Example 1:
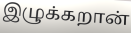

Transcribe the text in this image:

இழுக்கறான்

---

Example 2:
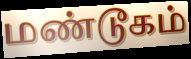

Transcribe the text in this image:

மண்டூகம்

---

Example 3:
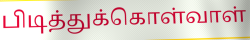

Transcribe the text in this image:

பிடித்துக்கொள்வாள்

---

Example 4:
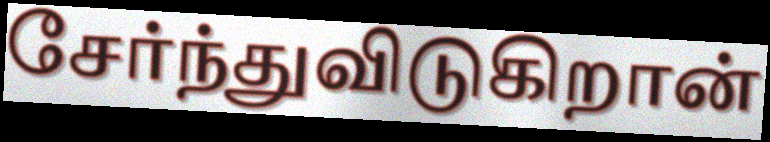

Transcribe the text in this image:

சேர்ந்துவிடுகிறான்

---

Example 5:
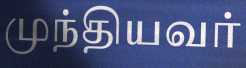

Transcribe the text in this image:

முந்தியவர்